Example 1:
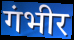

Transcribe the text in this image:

गंभीर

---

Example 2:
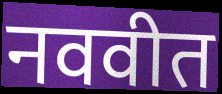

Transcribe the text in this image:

नववीत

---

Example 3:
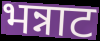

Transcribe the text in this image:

भन्नाट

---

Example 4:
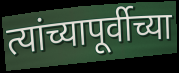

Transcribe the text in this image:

त्यांच्यापूर्वीच्या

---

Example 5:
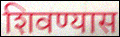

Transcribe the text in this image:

शिवण्यास